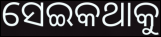
ସେଇକଥାକୁ